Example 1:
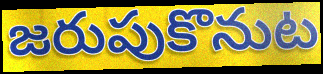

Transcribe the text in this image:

జరుపుకొనుట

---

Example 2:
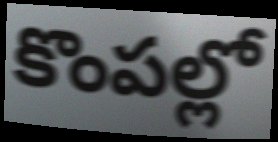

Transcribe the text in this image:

కొంపల్లో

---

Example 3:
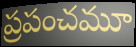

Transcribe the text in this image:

ప్రపంచమూ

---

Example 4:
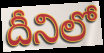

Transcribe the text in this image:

దీనిలో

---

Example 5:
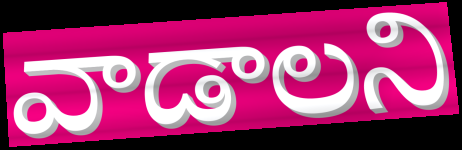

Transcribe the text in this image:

వాడాలని